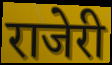
राजेरी